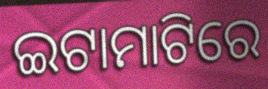
ଇଟାମାଟିରେ